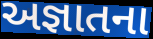
અજ્ઞાતના